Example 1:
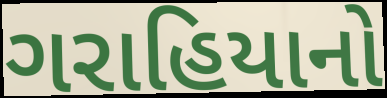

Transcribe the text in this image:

ગરાહિયાનો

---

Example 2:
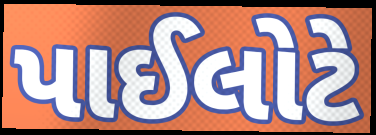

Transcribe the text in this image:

પાઈલોટે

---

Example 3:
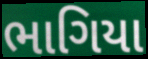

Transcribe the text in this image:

ભાગિયા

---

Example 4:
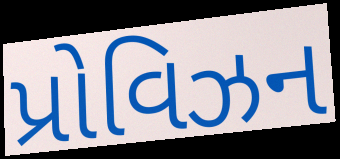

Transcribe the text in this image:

પ્રોવિઝન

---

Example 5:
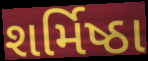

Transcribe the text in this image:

શર્મિષ્ઠા